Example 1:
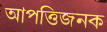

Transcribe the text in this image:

আপত্তিজনক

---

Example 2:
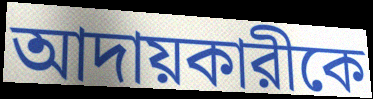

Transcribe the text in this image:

আদায়কারীকে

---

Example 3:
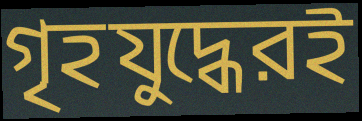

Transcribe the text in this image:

গৃহযুদ্ধেরই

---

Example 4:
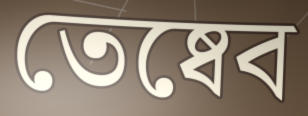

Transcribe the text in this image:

তেষ্বেব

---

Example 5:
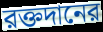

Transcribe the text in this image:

রক্তদানের